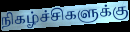
நிகழ்ச்சிகளுக்கு